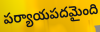
పర్యాయపదమైంది